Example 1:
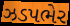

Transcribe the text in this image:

ઝડપભેર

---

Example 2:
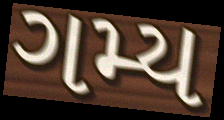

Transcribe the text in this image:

ગમ્ય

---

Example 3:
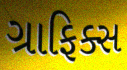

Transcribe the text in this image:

ગ્રાફિક્સ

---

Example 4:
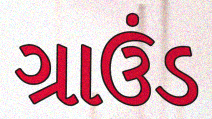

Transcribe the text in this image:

ગ્રાઉંડ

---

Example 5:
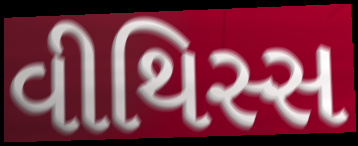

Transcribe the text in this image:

વીથિસ્સ